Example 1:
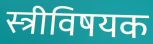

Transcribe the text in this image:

स्त्रीविषयक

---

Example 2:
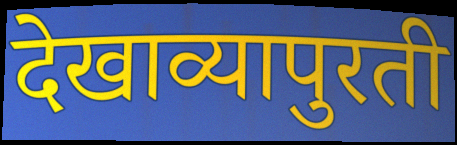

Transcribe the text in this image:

देखाव्यापुरती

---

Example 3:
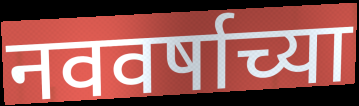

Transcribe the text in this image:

नववर्षाच्या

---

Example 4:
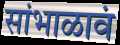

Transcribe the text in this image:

सांभाळावं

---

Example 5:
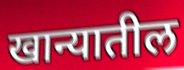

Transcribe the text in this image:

खान्यातील